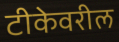
टीकेवरील